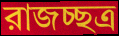
রাজচ্ছত্র